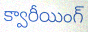
క్వారీయింగ్